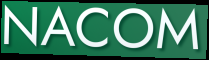
NACOM